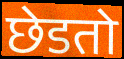
छेडतो